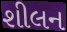
શીલન